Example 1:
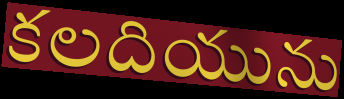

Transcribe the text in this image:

కలదియును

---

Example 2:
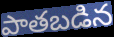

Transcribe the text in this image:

పాతబడిన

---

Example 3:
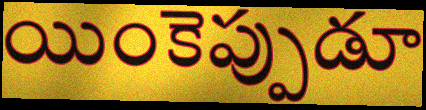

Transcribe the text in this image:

యింకెప్పుడూ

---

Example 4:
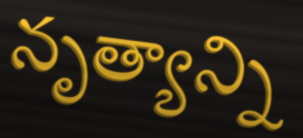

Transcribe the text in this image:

నృత్యాన్ని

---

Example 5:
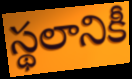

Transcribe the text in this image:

స్థలానికీ